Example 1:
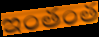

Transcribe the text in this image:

ఇంతంత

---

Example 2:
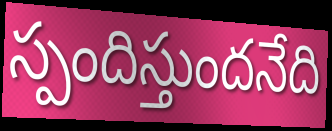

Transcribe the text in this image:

స్పందిస్తుందనేది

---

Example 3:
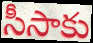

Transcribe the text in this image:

సీసాకు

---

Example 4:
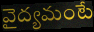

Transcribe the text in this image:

వైద్యమంటే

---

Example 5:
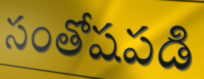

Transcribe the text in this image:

సంతోషపడి